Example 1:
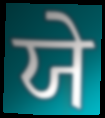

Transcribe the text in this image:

ਯੇ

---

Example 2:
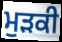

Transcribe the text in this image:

ਮੁੜਕੀ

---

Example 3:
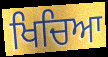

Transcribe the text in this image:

ਖਿਚਿਆ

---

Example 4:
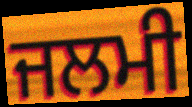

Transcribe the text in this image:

ਜਲਮੀ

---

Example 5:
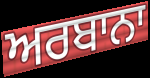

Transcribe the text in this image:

ਅਰਬਾਨਾ